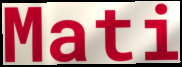
Mati